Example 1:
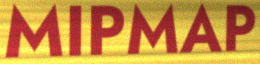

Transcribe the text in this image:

MIPMAP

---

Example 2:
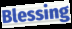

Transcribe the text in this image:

Blessing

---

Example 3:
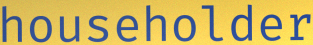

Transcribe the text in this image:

householder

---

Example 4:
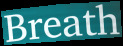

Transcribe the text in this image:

Breath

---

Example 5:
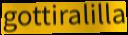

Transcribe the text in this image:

gottiralilla